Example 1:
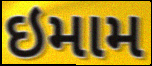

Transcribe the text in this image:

ઇમામ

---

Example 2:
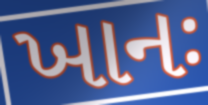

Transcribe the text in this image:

ખાનઃ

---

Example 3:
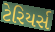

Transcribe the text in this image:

ટેરિયર્સ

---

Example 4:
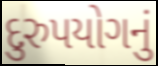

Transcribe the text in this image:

દુરુપયોગનું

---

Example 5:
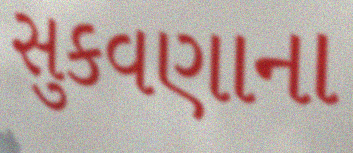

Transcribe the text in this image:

સુકવણાના